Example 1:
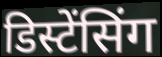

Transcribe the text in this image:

डिस्टेंसिंग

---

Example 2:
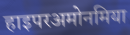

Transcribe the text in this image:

हाइपरअमोनमिया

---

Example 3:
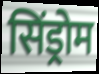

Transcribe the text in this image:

सिंड्रोम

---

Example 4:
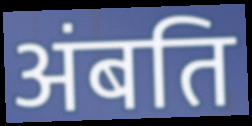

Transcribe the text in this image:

अंबति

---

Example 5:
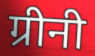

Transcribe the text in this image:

ग्रीनी